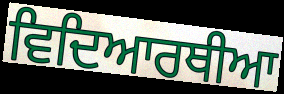
ਵਿਦਿਆਰਥੀਆ